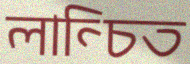
লান্চিত